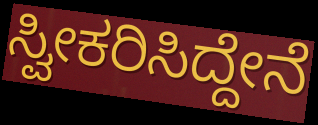
ಸ್ವೀಕರಿಸಿದ್ದೇನೆ